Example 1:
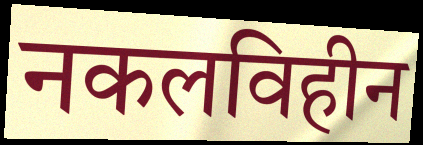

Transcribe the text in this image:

नकलविहीन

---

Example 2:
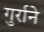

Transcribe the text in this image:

गुर्राने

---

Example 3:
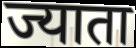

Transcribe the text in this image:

ज्याता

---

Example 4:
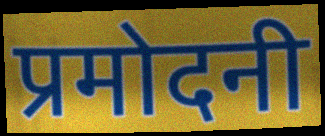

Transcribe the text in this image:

प्रमोदनी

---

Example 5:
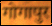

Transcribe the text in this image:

गोगापुर